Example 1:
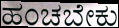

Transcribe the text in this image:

ಹಂಚಬೇಕು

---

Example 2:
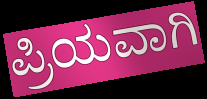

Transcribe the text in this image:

ಪ್ರಿಯವಾಗಿ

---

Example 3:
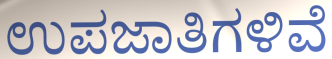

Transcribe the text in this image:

ಉಪಜಾತಿಗಳಿವೆ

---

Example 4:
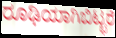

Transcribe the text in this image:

ರೂಢಿಯಾಗಿಬಿಟ್ಟರೆ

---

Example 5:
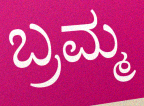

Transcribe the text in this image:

ಬ್ರಮ್ಮ